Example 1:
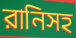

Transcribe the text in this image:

রানিসহ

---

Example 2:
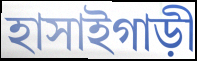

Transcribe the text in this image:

হাসাইগাড়ী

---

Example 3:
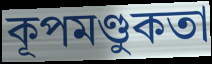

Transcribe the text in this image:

কূপমণ্ডুকতা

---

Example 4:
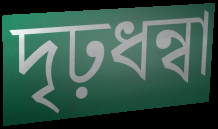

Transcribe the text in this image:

দৃঢ়ধন্বা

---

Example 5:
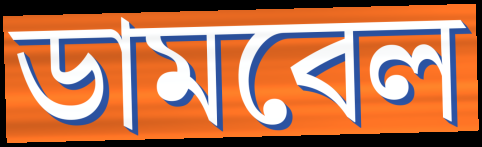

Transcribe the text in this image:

ডামবেল